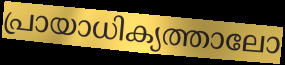
പ്രായാധിക്യത്താലോ